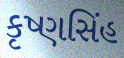
કૃષ્ણસિંહ